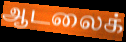
ஆடலைக்